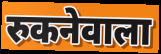
रुकनेवाला